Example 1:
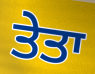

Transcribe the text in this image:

ਤੇਤਾ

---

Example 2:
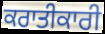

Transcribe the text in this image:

ਕਰਾਤੀਕਾਰੀ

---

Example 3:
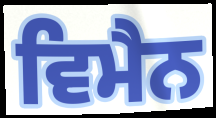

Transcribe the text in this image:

ਵਿਮੈਨ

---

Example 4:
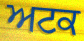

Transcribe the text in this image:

ਅਟਕ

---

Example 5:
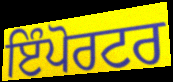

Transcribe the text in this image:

ਇੰਪੋਰਟਰ